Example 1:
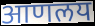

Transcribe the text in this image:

आणलय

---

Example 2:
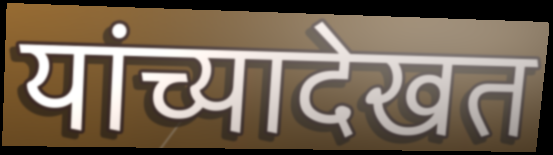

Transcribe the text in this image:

यांच्यादेखत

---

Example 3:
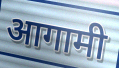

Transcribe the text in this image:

आगामी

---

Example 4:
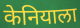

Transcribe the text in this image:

केनियाला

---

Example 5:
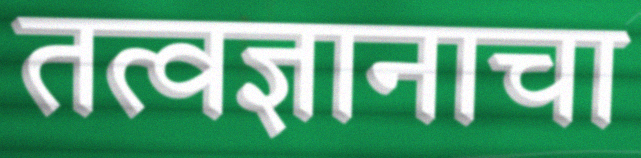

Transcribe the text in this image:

तत्वज्ञानाचा